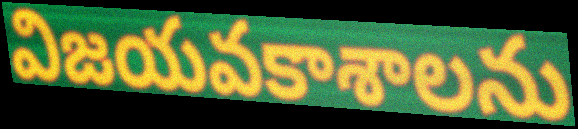
విజయవకాశాలను